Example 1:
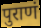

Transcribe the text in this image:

पुराणं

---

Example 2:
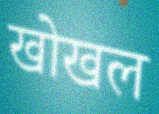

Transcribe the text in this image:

खोखल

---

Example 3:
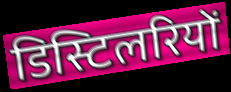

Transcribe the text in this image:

डिस्टिलरियों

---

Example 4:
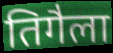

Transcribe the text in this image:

तिगैला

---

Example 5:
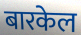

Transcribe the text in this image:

बारकेल